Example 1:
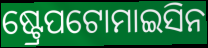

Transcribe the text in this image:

ଷ୍ଟ୍ରେପଟୋମାଇସିନ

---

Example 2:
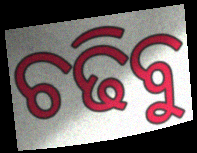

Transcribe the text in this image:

ଚଢିବୁ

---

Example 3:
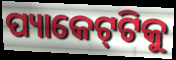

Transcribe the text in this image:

ପ୍ୟାକେଟ୍‌ଟିକୁ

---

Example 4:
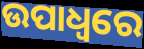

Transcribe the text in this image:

ଉପାଧ୍ଵରେ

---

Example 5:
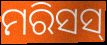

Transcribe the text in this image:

ମରିସସ୍